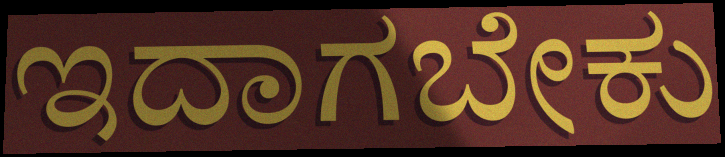
ಇದಾಗಬೇಕು